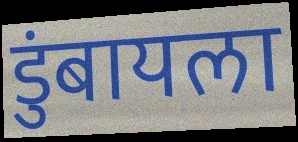
डुंबायला